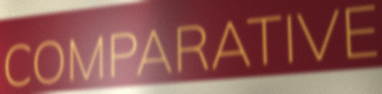
COMPARATIVE